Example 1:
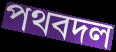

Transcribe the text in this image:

পথবদল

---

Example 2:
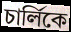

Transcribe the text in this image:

চার্লিকে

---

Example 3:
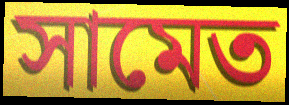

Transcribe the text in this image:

সামেত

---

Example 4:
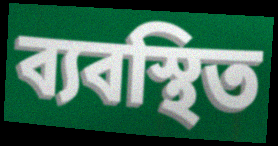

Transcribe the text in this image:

ব্যবস্থিত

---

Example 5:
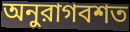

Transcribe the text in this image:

অনুরাগবশত